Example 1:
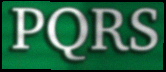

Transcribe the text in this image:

PQRS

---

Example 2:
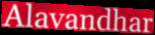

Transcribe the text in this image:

Alavandhar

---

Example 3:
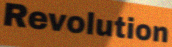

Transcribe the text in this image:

Revolution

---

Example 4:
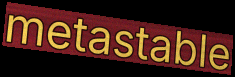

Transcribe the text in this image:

metastable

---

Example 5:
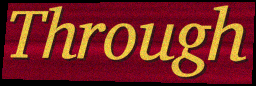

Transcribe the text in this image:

Through